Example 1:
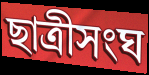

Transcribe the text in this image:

ছাত্রীসংঘ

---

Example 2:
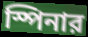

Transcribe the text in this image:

স্পিনার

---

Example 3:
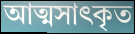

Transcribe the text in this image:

আত্মসাৎকৃত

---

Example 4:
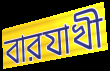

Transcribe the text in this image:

বারযাখী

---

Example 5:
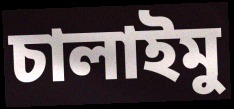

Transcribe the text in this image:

চালাইমু